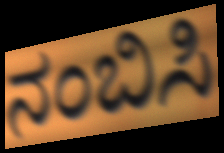
ನಂಬಿಸಿ